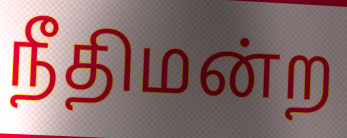
நீதிமன்ற